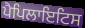
ਪੈਪਿਲਾਇਟਿਸ